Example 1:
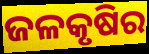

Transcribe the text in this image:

ଜଳକୃଷିର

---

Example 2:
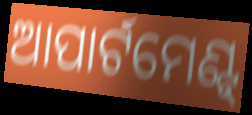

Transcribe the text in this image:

ଆପାର୍ଟମେଣ୍ଟ୍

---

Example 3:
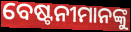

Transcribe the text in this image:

ବେଷ୍ଟନୀମାନଙ୍କୁ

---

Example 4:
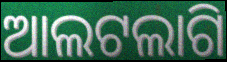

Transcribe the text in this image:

ଆଲଟଲାଗି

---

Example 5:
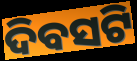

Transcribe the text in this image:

ଦିବସଟି